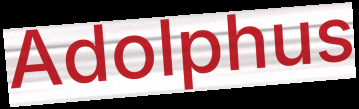
Adolphus